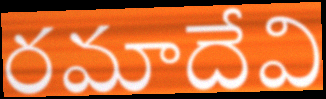
రమాదేవి